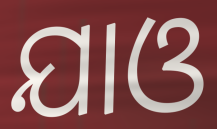
ଯାଓ